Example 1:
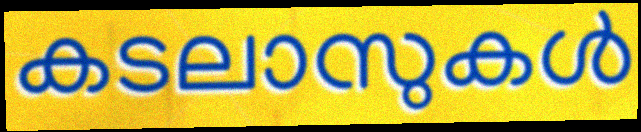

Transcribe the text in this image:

കടലാസുകൾ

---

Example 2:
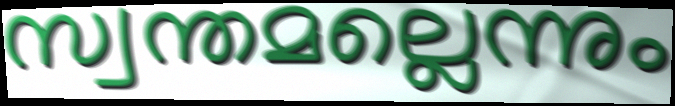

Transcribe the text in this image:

സ്വന്തമല്ലെന്നും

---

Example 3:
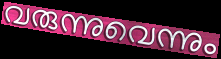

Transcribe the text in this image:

വരുന്നുവെന്നും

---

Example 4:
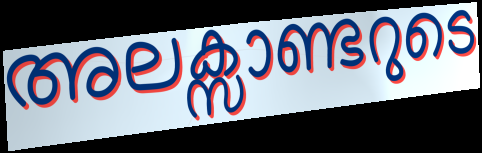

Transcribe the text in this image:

അലക്സാണ്ടറുടെ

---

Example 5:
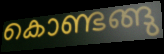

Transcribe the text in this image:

കൊണ്ടങ്ങു